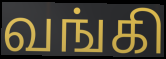
வங்கி